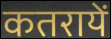
कतरायें